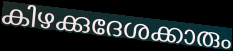
കിഴക്കുദേശക്കാരും